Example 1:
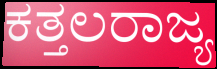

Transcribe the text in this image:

ಕತ್ತಲರಾಜ್ಯ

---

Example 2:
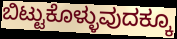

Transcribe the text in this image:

ಬಿಟ್ಟುಕೊಳ್ಳುವುದಕ್ಕೂ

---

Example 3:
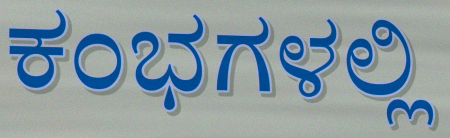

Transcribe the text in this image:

ಕಂಭಗಳಲ್ಲಿ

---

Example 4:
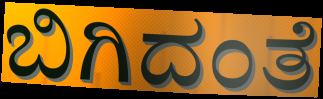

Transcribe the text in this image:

ಬಿಗಿದಂತೆ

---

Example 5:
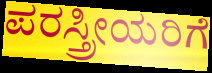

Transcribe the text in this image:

ಪರಸ್ತ್ರೀಯರಿಗೆ